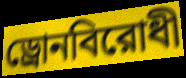
ড্রোনবিরোধী